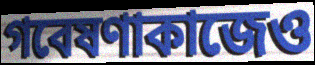
গবেষণাকাজেও